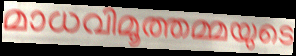
മാധവിമൂത്തമ്മയുടെ